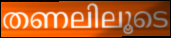
തണലിലൂടെ